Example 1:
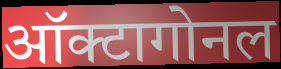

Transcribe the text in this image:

ऑक्टागोनल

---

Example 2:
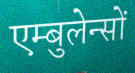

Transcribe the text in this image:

एम्बुलेन्सों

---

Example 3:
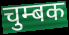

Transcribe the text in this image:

चुम्बक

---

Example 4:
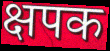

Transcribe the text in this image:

क्षपक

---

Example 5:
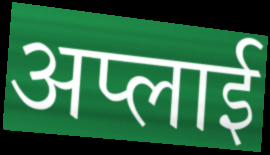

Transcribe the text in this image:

अप्‍लाई